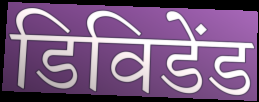
डिविडेंड